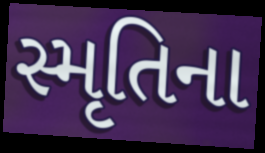
સ્મૃતિના